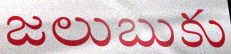
జలుబుకు